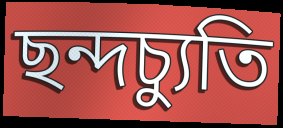
ছন্দচ্যুতি